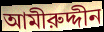
আমীরুদ্দীন